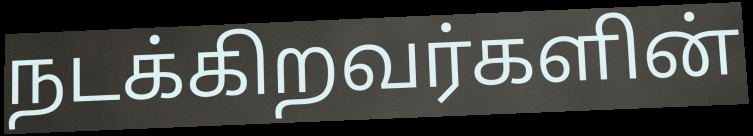
நடக்கிறவர்களின்